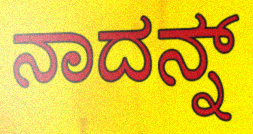
ನಾದನ್ನ್